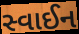
સ્વાઈન